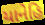
યાનેહિ